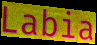
Labia